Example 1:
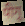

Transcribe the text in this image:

पीगू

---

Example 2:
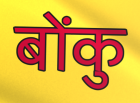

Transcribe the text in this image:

बोंकु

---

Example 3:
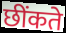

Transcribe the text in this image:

छींकते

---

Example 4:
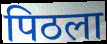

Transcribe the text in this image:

पिठला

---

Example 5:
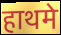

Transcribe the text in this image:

हाथमे